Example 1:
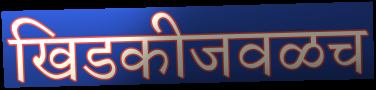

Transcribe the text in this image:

खिडकीजवळच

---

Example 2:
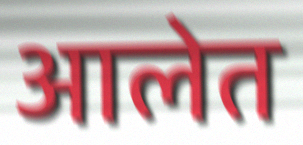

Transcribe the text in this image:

आलेत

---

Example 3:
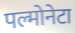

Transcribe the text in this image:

पल्मोनेटा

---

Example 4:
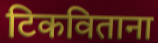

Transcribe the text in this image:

टिकविताना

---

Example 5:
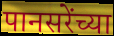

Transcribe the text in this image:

पानसरेंच्या